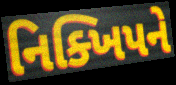
નિક્ખિપને